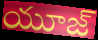
యూజ్